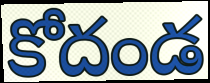
కోదండ